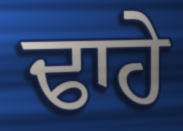
ਢਾਹੇ